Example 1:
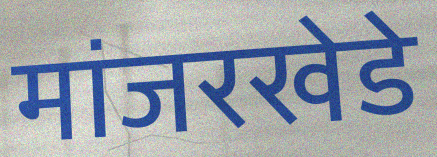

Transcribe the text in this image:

मांजरखेडे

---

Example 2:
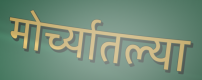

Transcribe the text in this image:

मोर्च्यातल्या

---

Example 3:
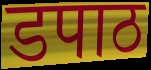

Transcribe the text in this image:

डपाठ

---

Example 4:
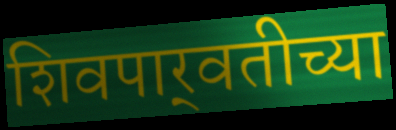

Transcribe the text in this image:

शिवपार्वतीच्या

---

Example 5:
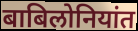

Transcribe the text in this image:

बाबिलोनियांत